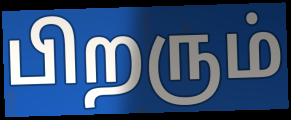
பிறரும்